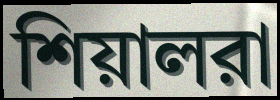
শিয়ালরা